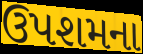
ઉપશમના